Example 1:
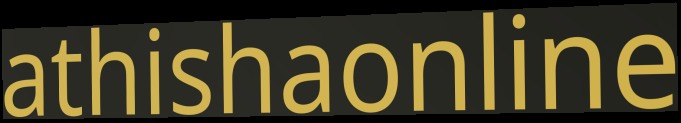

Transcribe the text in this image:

athishaonline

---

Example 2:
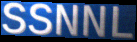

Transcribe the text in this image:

SSNNL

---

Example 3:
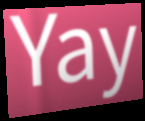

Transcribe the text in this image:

Yay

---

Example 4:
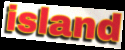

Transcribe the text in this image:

island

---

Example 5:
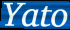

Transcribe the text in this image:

Yato